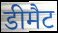
डीमैट